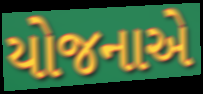
યોજનાએ